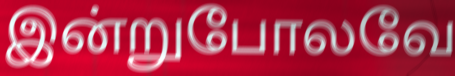
இன்றுபோலவே